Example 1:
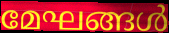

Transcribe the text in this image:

മേഘങ്ങൾ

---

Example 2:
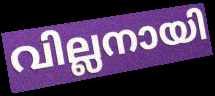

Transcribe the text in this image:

വില്ലനായി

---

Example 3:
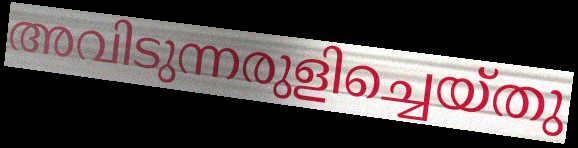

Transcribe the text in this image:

അവിടുന്നരുളിച്ചെയ്തു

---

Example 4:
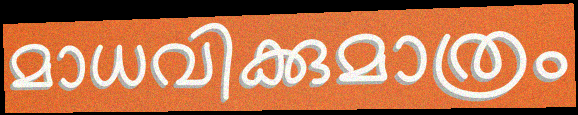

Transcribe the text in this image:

മാധവിക്കുമാത്രം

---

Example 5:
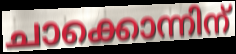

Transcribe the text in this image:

ചാക്കൊന്നിന്